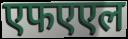
एफएएल